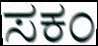
ಸಕಂ